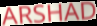
ARSHAD